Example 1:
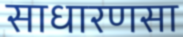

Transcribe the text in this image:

साधारणसा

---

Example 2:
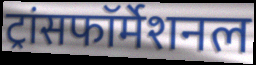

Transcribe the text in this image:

ट्रांसफॉर्मेशनल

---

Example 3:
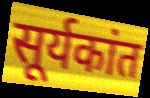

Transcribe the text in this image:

सूर्यकांत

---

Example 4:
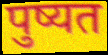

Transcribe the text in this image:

पुष्यत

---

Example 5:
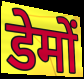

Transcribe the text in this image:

डेमों